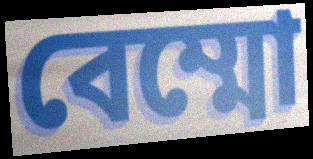
বেম্মো